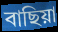
বাছিয়া